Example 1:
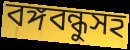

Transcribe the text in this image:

বঙ্গবন্ধুসহ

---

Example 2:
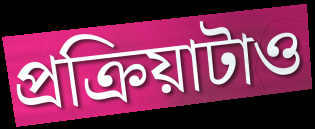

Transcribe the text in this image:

প্রক্রিয়াটাও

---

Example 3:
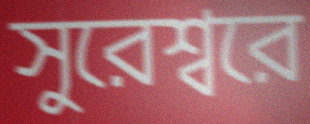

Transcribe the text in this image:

সুরেশ্বরে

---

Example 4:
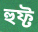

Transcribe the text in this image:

হুফ্ট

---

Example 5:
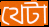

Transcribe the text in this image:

থেটা